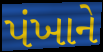
પંખાને